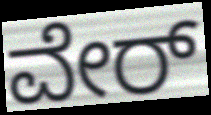
ವೇರ್